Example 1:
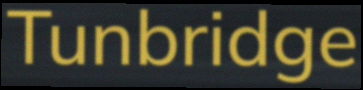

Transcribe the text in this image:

Tunbridge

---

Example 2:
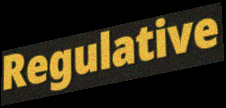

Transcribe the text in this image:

Regulative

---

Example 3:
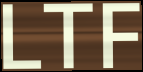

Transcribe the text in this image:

LTF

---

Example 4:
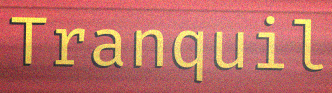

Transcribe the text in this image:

Tranquil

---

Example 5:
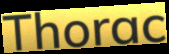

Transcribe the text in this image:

Thorac